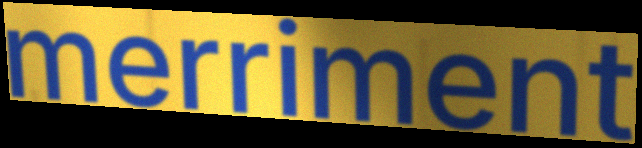
merriment